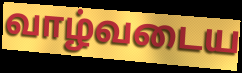
வாழ்வடைய